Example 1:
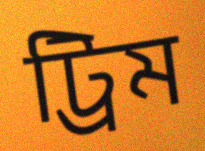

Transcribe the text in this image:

ট্ৰিম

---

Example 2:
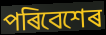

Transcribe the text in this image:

পৰিবেশেৰ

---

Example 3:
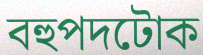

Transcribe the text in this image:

বহুপদটোক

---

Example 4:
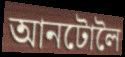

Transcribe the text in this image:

আনটোলৈ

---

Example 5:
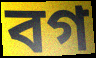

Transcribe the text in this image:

বগ